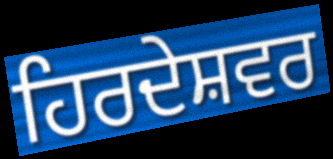
ਹਿਰਦੇਸ਼ਵਰ